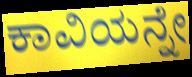
ಕಾವಿಯನ್ನೇ